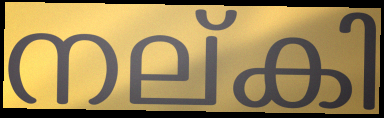
നല്‌കി